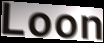
Loon